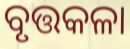
ବୃତ୍ତକଳା